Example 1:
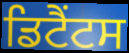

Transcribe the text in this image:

ਡਿਟੈਂਟਸ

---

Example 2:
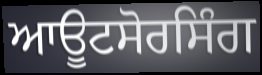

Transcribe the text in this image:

ਆਊਟਸੋਰਸਿੰਗ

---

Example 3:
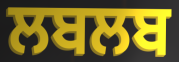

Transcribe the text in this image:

ਲਬਲਬ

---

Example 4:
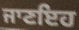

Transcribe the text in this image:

ਜਾਣਇਹ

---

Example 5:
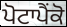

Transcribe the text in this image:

ਪੋਟਾਪੈਂਕੋ